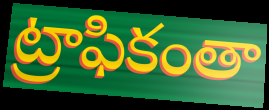
ట్రాఫికంతా